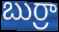
బుర్రా